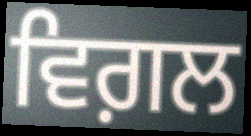
ਵਿਗ਼ਲ